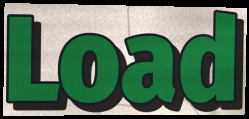
Load